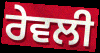
ਰੇਵਲੀ